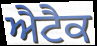
ਐਟੈਕ